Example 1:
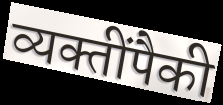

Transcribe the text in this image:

व्यक्‍तींपैकी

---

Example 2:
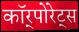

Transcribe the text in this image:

कॉर्पोरेट्‌स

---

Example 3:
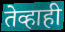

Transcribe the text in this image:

तेव्हाही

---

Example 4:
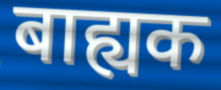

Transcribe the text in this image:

बाह्यक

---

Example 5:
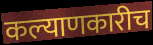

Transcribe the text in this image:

कल्याणकारीच